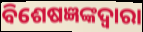
ବିଶେଷଜ୍ଞଙ୍କଦ୍ୱାରା